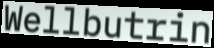
Wellbutrin